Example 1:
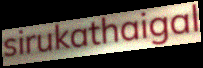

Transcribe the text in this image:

sirukathaigal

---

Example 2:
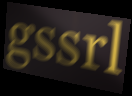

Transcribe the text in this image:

gssrl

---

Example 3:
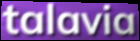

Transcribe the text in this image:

talavia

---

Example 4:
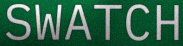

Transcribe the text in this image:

SWATCH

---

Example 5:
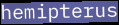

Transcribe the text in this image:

hemipterus